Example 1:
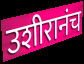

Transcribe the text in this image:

उशीरानंच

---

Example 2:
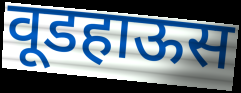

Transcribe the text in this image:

वूडहाऊस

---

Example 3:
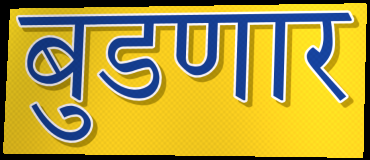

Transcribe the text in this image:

बुडणार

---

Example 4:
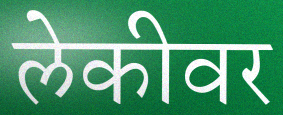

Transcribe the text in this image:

लेकीवर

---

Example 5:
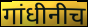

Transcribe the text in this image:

गांधीनीच